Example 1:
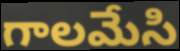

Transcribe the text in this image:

గాలమేసి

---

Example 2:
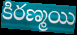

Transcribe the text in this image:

కిరణ్మయి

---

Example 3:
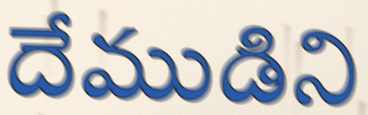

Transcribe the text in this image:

దేముడిని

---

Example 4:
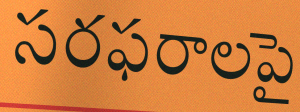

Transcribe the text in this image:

సరఫరాలపై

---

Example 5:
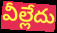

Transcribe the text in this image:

వీల్లేదు